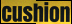
cushion